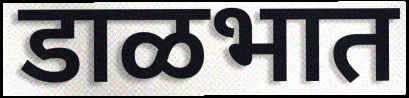
डाळभात